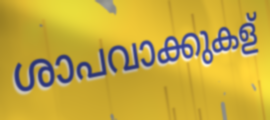
ശാപവാക്കുകള്